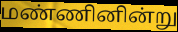
மண்ணினின்று